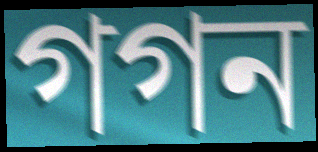
গগন